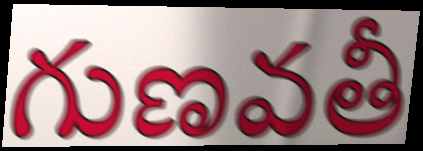
గుణవతీ